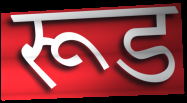
रूड